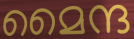
മൈന്ദ